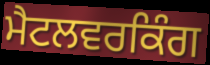
ਮੈਟਲਵਰਕਿੰਗ